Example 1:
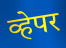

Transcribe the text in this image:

व्हेपर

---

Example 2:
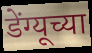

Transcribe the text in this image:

डेंग्यूच्या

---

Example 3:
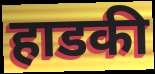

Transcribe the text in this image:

हाडकी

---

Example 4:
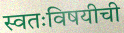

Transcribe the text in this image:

स्वतःविषयीची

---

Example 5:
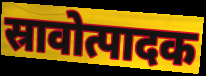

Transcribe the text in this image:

स्रावोत्पादक